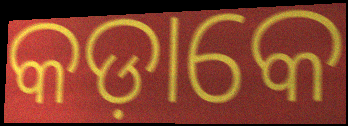
କଡ଼ାକେ